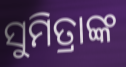
ସୁମିତ୍ରାଙ୍କ